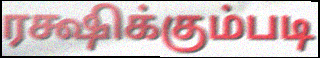
ரக்ஷிக்கும்படி